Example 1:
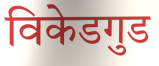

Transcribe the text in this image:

विकेडगुड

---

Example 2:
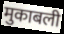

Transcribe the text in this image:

मुकाबली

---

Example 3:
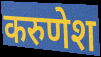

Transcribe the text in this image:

करुणेश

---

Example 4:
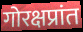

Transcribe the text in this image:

गोरक्षप्रांत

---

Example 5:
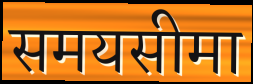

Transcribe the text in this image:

समयसीमा